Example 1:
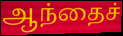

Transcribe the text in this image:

ஆந்தைச்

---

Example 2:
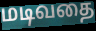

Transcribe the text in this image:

மடிவதை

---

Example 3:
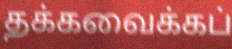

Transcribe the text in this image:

தக்கவைக்கப்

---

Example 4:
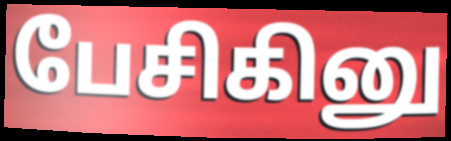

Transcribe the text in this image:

பேசிகினு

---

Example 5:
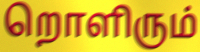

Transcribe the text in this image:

றொளிரும்